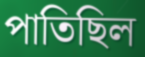
পাতিছিল